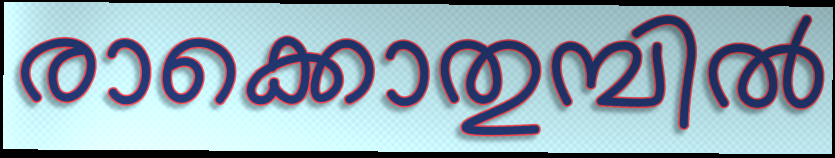
രാക്കൊതുമ്പിൽ